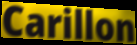
Carillon